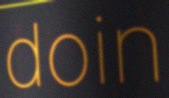
doin